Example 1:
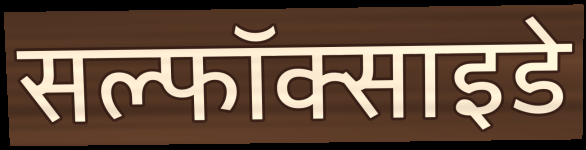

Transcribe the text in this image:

सल्फॉक्साइडे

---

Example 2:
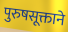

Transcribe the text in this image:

पुरुषसूक्ताने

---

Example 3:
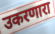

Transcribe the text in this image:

उकरणारा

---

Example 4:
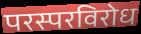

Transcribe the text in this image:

परस्परविरोध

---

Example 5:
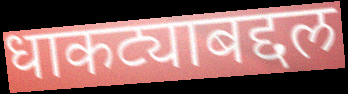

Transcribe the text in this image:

धाकट्याबद्दल